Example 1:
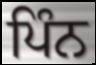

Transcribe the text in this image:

ਪਿੰਨ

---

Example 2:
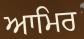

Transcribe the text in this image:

ਆਮਿਰ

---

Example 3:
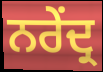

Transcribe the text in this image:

ਨਰੇਂਦ੍ਰ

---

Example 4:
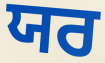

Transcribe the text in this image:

ਯਰ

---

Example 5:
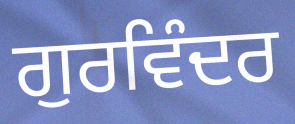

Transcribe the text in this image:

ਗੁਰਵਿੰਦਰ